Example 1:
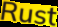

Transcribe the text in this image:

Rust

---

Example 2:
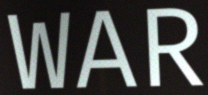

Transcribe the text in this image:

WAR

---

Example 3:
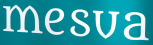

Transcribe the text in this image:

mesua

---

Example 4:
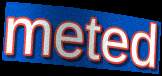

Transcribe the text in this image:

meted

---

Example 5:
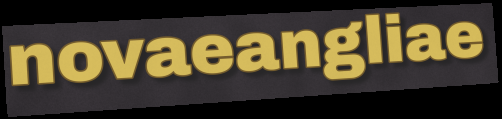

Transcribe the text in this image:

novaeangliae